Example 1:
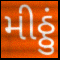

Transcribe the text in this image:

મીઠ્ઠું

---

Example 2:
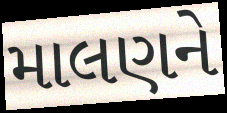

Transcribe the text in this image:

માલણને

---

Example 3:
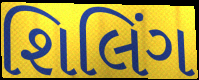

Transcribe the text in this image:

શિલિંગ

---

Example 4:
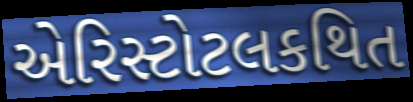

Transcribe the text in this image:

એરિસ્ટોટલકથિત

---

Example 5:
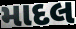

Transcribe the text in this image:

માદલ